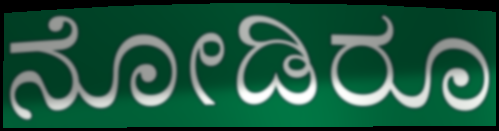
ನೋಡಿರೂ